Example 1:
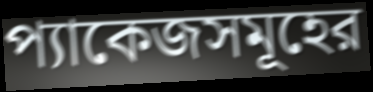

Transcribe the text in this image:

প্যাকেজসমূহের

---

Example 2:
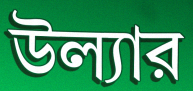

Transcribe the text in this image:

উল্যার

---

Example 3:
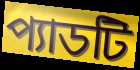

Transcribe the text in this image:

প্যাডটি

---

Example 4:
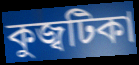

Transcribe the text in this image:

কুজ্বটিকা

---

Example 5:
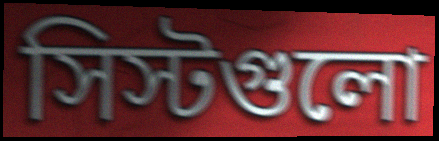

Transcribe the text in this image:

সিস্টগুলো